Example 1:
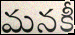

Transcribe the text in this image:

మనకీ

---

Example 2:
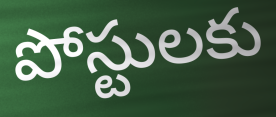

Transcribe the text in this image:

పోస్టులకు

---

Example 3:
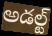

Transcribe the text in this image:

అడల్ట్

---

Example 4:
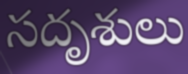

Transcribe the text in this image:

సదృశులు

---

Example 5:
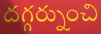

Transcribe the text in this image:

దగ్గర్నుంచి